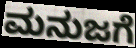
ಮನುಜಗೆ